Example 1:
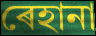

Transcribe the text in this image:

ৰেহানা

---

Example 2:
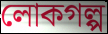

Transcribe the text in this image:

লোকগল্প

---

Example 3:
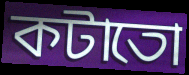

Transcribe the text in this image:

কটাতো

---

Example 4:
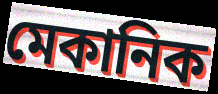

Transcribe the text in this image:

মেকানিক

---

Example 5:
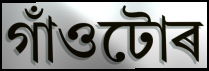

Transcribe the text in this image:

গাঁওটোৰ